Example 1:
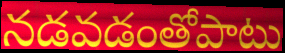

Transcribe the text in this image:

నడవడంతోపాటు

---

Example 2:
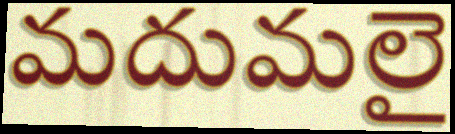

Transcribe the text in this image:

మదుమలై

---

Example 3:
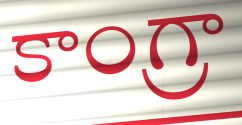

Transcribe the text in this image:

కాంగ్రా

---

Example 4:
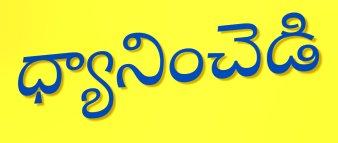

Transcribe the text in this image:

ధ్యానించెడి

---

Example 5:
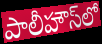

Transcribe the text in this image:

పాలీహౌస్‌లో